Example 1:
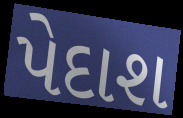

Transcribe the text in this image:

પેદાશ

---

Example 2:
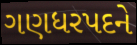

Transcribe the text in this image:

ગણધરપદને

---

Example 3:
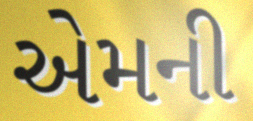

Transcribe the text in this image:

એમની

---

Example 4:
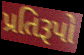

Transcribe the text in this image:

પ્રતિરૂપો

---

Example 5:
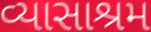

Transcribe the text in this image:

વ્યાસાશ્રમ